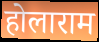
होलाराम